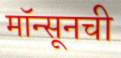
मॉन्सूनची